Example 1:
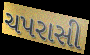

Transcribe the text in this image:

ચપરાસી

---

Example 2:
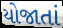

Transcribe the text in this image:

યોજાતાં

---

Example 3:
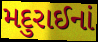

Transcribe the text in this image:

મદુરાઈનાં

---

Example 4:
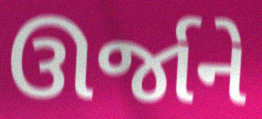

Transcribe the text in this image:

ઊર્જાને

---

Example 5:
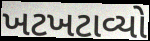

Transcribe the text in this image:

ખટખટાવ્યો